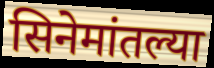
सिनेमांतल्या